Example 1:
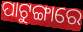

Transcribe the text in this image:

ପାଟୁଙ୍ଗାରେ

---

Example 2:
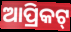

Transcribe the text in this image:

ଆପ୍ରିକଟ୍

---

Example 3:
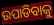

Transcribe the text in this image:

ଉପାଡିବାକୁ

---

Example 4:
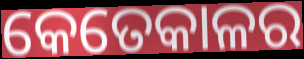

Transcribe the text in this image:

କେତେକାଳର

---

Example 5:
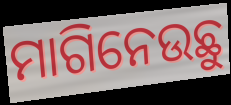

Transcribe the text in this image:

ମାଗିନେଉଛୁ